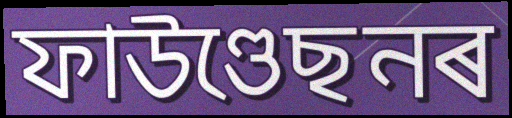
ফাউণ্ডেছনৰ